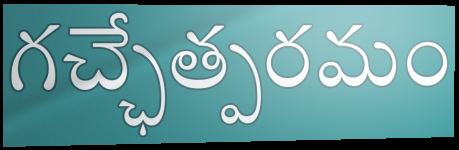
గచ్ఛేత్పరమం